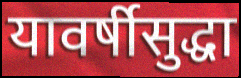
यावर्षीसुद्धा